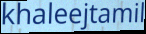
khaleejtamil